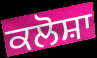
ਕਲੋਸ਼ਾ